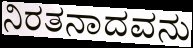
ನಿರತನಾದವನು